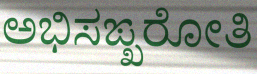
ಅಭಿಸಙ್ಖರೋತಿ